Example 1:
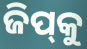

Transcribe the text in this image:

ଜିପ୍‌କୁ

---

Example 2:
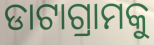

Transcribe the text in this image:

ଡାଟାଗ୍ରାମକୁ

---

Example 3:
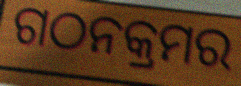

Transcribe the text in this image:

ଗଠନକ୍ରମର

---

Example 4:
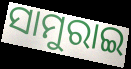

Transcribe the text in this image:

ସାମୁରାଇ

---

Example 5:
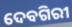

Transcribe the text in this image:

ଦେବଗିରୀ